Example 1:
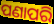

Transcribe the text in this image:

ପଣାପରି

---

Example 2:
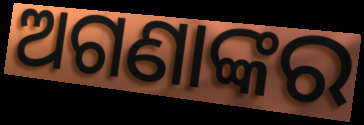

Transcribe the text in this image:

ଅଗଣାଙ୍କର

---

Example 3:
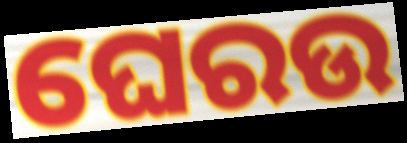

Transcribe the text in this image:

ଘେରଉ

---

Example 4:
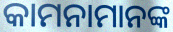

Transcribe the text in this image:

କାମନାମାନଙ୍କ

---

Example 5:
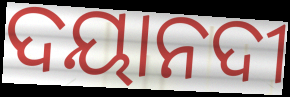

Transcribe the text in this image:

ଦୟାନଦୀ